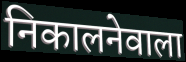
निकालनेवाला